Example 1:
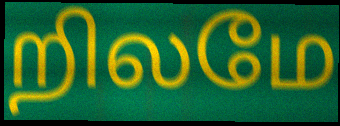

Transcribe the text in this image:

றிலமே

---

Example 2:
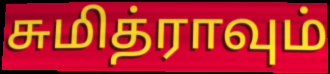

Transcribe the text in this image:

சுமித்ராவும்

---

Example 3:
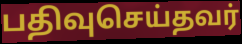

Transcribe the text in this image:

பதிவுசெய்தவர்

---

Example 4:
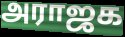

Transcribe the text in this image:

அராஜக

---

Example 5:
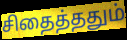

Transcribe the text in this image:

சிதைத்ததும்